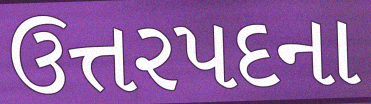
ઉત્તરપદના